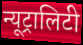
न्यूट्रालिटी